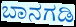
ಬಾನಗಡಿ